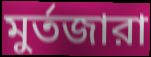
মুর্তজারা